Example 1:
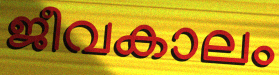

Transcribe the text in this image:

ജീവകാലം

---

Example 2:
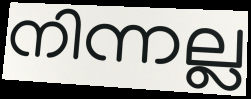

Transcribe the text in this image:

നിന്നല്ല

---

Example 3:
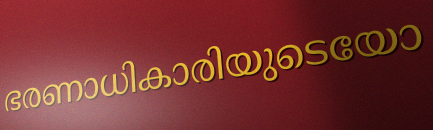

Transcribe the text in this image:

ഭരണാധികാരിയുടെയോ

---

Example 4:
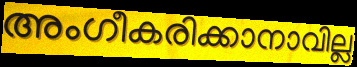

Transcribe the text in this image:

അംഗീകരിക്കാനാവില്ല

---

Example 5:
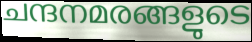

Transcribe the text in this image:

ചന്ദനമരങ്ങളുടെ